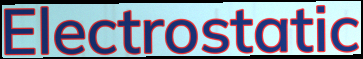
Electrostatic